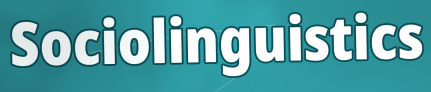
Sociolinguistics